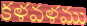
కళవళము